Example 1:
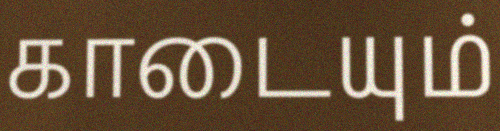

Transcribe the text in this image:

காடையும்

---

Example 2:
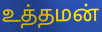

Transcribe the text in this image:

உத்தமன்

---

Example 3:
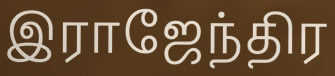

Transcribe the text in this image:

இராஜேந்திர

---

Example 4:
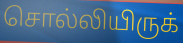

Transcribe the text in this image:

சொல்லியிருக்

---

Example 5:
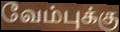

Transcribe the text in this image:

வேம்புக்கு